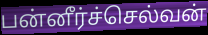
பன்னீர்ச்செல்வன்